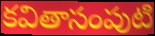
కవితాసంపుటి